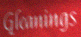
Gleanings